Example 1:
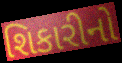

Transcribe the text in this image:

શિકારીનો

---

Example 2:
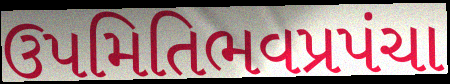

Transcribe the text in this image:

ઉપમિતિભવપ્રપંચા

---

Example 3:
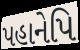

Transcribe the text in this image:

પહાનેપિ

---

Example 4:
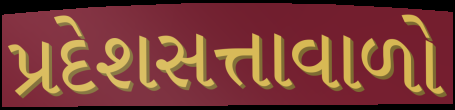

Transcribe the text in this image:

પ્રદેશસત્તાવાળો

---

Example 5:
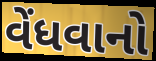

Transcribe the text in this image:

વેંધવાનો